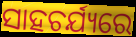
ସାହଚର୍ଯ୍ୟରେ